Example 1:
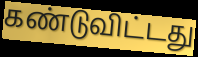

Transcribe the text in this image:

கண்டுவிட்டது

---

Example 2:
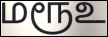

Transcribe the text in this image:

மரூஉ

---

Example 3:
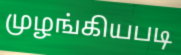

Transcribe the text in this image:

முழங்கியபடி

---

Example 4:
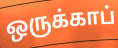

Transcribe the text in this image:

ஒருக்காப்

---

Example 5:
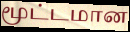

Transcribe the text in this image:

மூட்டமான